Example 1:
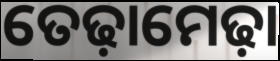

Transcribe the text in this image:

ତେଢ଼ାମେଢ଼ା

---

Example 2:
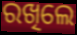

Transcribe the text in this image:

ରଖିଲେ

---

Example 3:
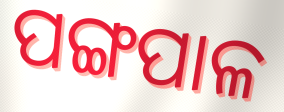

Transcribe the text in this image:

ପଙ୍ଗପାଳ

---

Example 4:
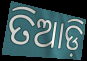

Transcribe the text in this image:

ତିଆଡ଼ି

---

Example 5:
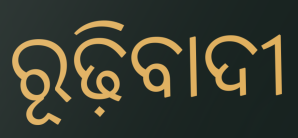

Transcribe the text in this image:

ରୂଢ଼ିବାଦୀ